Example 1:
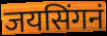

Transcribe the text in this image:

जयसिंगनं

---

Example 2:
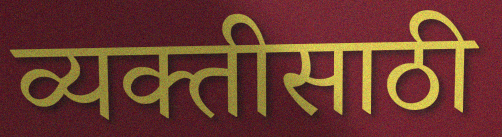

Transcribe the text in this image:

व्यक्तीसाठी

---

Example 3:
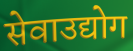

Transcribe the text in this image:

सेवाउद्योग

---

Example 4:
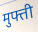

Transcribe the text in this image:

मुफ्ती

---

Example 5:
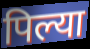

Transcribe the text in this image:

पिल्या